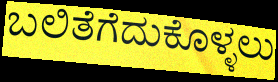
ಬಲಿತೆಗೆದುಕೊಳ್ಳಲು